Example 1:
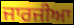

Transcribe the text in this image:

ਜਾਰਜੀਆ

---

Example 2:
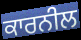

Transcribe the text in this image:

ਕਾਰਨੀਲ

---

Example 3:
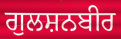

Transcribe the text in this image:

ਗੁਲਸ਼ਨਬੀਰ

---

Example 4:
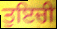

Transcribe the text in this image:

ਤੁਇਚੀ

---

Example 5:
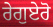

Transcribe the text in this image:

ਰੇਗੁਏਰੋ